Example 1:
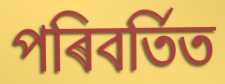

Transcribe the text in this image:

পৰিবৰ্তিত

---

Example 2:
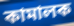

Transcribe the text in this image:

কামালক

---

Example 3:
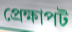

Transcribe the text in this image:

প্ৰেক্ষাপট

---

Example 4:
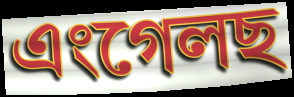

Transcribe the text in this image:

এংগেলছ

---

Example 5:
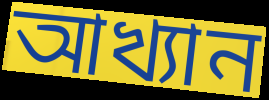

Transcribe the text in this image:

আখ্যান